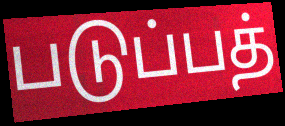
படுப்பத்